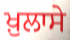
ਖ਼ੁਲਾਸੇ